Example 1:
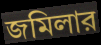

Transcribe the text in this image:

জমিলার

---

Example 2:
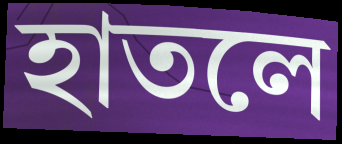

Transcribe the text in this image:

হাতলে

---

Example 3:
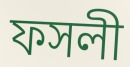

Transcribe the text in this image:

ফসলী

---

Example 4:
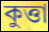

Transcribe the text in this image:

কুত্তা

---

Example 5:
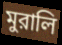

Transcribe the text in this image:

মুরালি